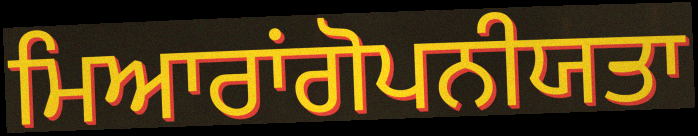
ਮਿਆਰਾਂਗੋਪਨੀਯਤਾ